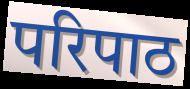
परिपाठ